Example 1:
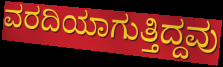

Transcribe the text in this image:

ವರದಿಯಾಗುತ್ತಿದ್ದವು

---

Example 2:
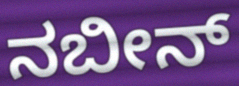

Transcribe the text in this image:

ನಬೀನ್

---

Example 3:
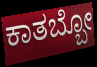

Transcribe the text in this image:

ಕಾತಬ್ಬೋ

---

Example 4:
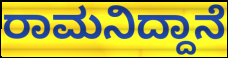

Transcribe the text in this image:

ರಾಮನಿದ್ದಾನೆ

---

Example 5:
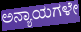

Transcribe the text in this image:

ಅನ್ಯಾಯಗಳೇ